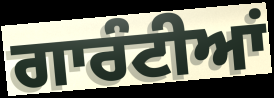
ਗਾਰੰਟੀਆਂ